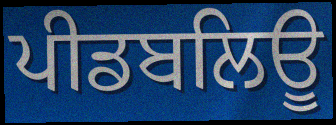
ਪੀਡਬਲਿਊ